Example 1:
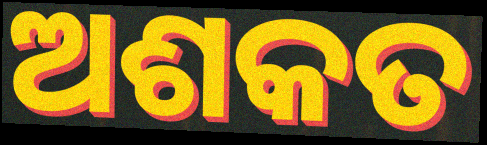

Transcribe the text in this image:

ଅଶକତ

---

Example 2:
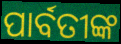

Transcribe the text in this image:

ପାର୍ବତୀଙ୍କ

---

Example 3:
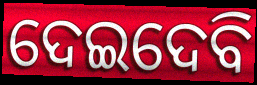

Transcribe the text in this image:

ଦେଇଦେବି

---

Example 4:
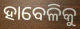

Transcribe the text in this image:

ହାବେଳିକୁ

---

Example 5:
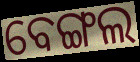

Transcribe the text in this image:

ବେଙ୍ଗଲ